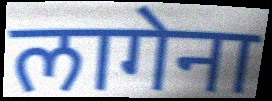
लागेना